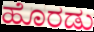
ಹೊರಡು